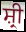
ਸ਼੍ਰੀ